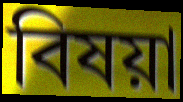
বিষয়া